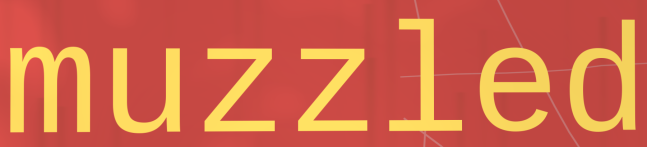
muzzled